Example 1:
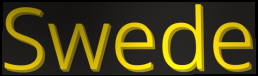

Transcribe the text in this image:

Swede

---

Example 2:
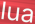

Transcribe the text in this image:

lua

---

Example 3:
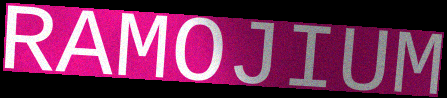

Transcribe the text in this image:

RAMOJIUM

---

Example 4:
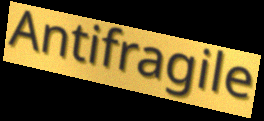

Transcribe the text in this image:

Antifragile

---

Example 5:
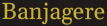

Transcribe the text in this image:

Banjagere